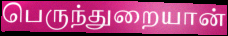
பெருந்துறையான்